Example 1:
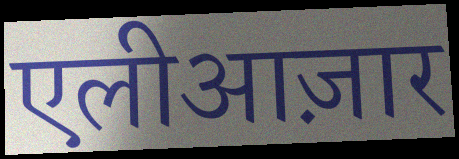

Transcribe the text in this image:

एलीआज़ार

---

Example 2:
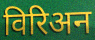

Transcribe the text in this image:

विरिअन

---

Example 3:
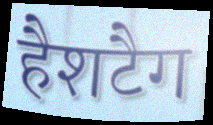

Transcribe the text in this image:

हैशटैग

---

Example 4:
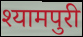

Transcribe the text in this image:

श्यामपुरी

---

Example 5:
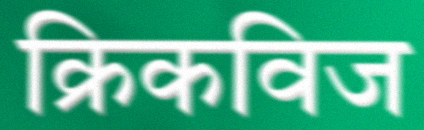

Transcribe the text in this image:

क्रिकविज